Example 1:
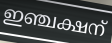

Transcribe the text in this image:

ഇഞ്ചക്ഷന്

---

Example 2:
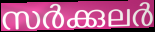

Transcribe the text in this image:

സർക്കുലർ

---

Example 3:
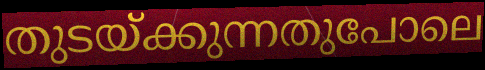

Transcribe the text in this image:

തുടയ്ക്കുന്നതുപോലെ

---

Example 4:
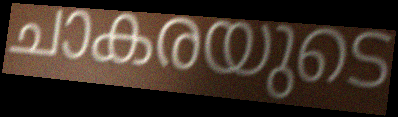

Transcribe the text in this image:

ചാകരയുടെ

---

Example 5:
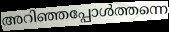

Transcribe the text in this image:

അറിഞ്ഞപ്പോൾത്തന്നെ